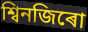
শ্বিনজিৰো